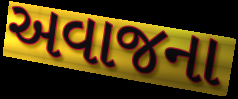
અવાજના